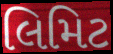
લિમિટ